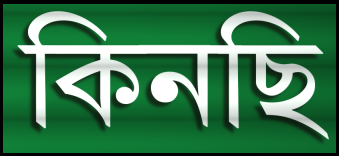
কিনছি